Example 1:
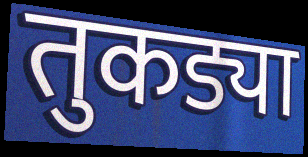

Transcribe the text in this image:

तुकड्या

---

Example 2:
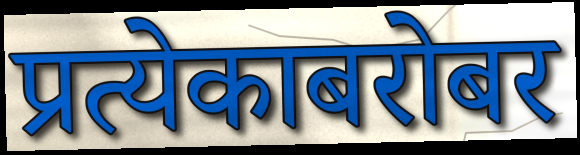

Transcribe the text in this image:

प्रत्येकाबरोबर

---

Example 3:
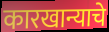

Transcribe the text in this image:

कारखान्याचे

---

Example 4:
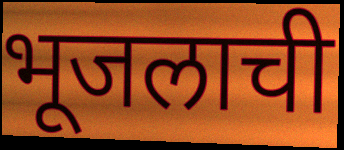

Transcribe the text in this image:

भूजलाची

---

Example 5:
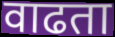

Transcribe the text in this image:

वाढता